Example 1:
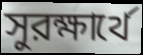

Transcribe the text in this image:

সুরক্ষার্থে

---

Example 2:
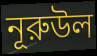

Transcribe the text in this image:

নূরুউল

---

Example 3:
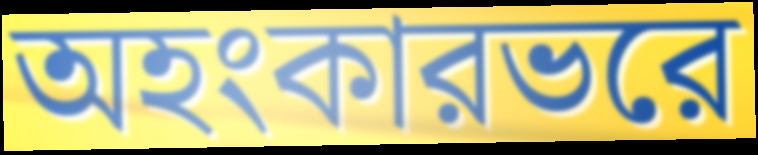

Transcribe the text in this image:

অহংকারভরে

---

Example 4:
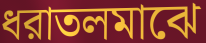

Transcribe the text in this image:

ধরাতলমাঝে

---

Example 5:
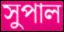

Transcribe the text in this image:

সুপাল